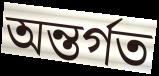
অন্তর্গত